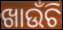
ଖାଉଁଚି